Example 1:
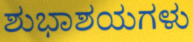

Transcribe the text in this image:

ಶುಭಾಶಯಗಳು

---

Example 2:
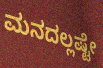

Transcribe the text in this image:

ಮನದಲ್ಲಷ್ಟೇ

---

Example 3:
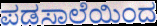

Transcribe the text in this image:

ಪಡಸಾಲೆಯಿಂದ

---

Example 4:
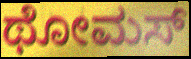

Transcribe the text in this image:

ಥೋಮಸ್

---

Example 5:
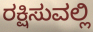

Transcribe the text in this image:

ರಕ್ಷಿಸುವಲ್ಲಿ